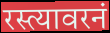
रस्त्यावरनं